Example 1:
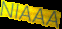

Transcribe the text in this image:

NIAAA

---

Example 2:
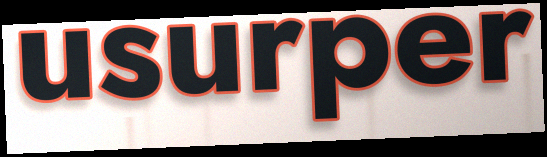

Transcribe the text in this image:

usurper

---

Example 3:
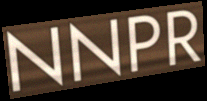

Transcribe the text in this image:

NNPR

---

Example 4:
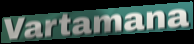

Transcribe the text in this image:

Vartamana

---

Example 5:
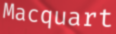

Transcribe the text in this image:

Macquart